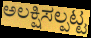
ಅಲಕ್ಷಿಸಲ್ಪಟ್ಟ